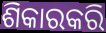
ଶିକାରକରି